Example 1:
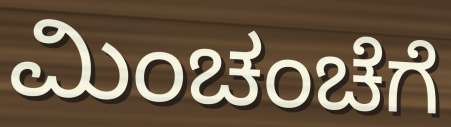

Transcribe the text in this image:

ಮಿಂಚಂಚೆಗೆ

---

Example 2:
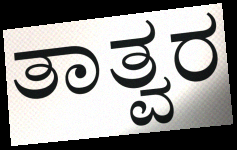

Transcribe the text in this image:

ತಾತ್ವರ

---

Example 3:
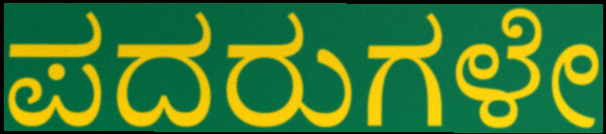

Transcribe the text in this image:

ಪದರುಗಳೇ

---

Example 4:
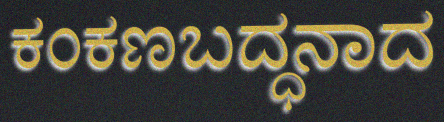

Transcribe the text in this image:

ಕಂಕಣಬದ್ಧನಾದ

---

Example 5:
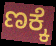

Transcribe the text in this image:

ಣಕ್ಕೆ